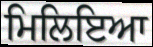
ਮਿਲਿਇਆ